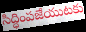
సిద్ధింపజేయుటకు